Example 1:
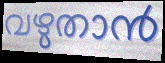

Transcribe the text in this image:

വഴുതാൻ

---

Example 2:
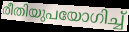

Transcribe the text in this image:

രീതിയുപയോഗിച്ച്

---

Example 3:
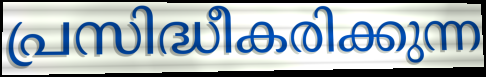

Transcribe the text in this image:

പ്രസിദ്ധീകരിക്കുന്ന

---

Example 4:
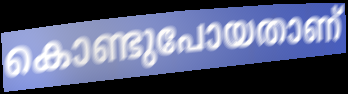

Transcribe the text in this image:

കൊണ്ടുപോയതാണ്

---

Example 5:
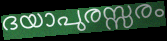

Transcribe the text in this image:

ദയാപുരസ്സരം